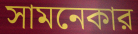
সামনেকার